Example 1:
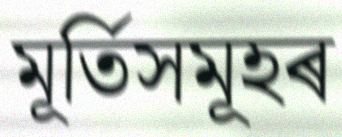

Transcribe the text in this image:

মূৰ্তিসমূহৰ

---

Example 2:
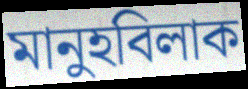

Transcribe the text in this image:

মানুহবিলাক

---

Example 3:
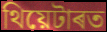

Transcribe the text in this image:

থিয়েটাৰত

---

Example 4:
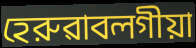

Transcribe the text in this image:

হেৰুৱাবলগীয়া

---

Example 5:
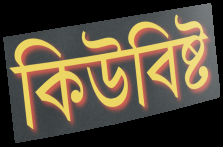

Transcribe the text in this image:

কিউবিষ্ট